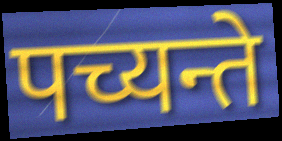
पच्यन्ते